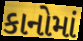
કાનોમાં